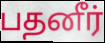
பதனீர்